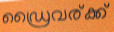
ഡ്രൈവര്ക്ക്